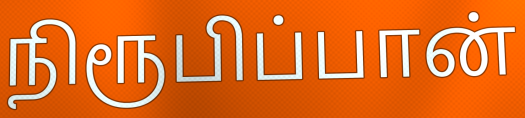
நிரூபிப்பான்